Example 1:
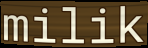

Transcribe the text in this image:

milik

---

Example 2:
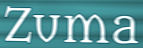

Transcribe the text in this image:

Zuma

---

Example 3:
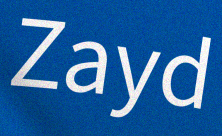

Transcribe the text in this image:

Zayd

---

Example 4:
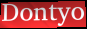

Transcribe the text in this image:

Dontyo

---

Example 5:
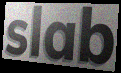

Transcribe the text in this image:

slab